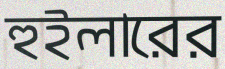
হুইলারের